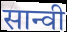
सान्वी